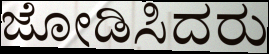
ಜೋಡಿಸಿದರು